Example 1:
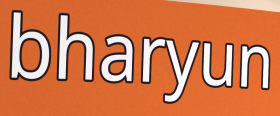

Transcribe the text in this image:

bharyun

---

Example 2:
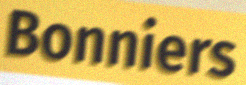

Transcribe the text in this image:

Bonniers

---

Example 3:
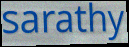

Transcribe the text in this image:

sarathy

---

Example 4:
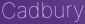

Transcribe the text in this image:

Cadbury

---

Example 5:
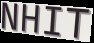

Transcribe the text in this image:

NHIT